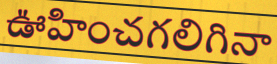
ఊహించగలిగినా